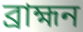
ব্ৰাহ্মন